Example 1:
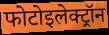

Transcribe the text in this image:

फोटोइलेक्ट्रॉन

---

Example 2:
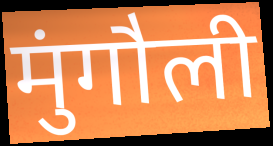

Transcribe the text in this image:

मुंगौली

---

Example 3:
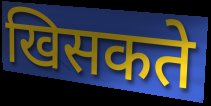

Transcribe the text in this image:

खिसकते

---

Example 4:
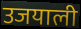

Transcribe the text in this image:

उजयाली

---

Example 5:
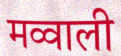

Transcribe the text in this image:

मव्वाली